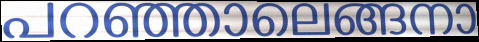
പറഞ്ഞാലെങ്ങനാ